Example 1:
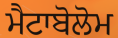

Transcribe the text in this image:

ਮੈਟਾਬੋਲੋਮ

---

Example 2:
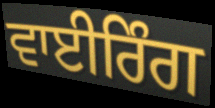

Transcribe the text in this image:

ਵਾਈਰਿੰਗ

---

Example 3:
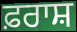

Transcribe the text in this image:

ਫ਼ਰਾਸ਼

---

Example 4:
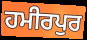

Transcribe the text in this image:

ਹਮੀਰਪੁਰ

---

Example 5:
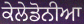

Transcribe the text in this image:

ਕੇਲੇਡੋਨੀਆ